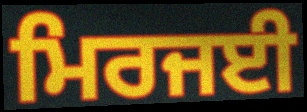
ਮਿਰਜਈ